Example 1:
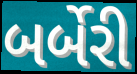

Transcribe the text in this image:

બર્બેરી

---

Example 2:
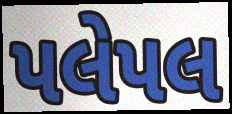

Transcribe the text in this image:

પલેપલ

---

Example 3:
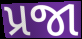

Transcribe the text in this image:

પ્રજા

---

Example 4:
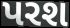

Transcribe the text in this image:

પરશ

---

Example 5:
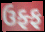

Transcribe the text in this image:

ઉફ્ફ